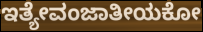
ಇತ್ಯೇವಂಜಾತೀಯಕೋ